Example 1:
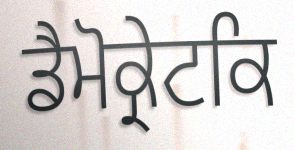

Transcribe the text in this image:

ਡੈਮੋਕ੍ਰੇਟਕਿ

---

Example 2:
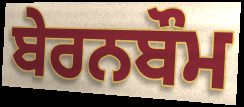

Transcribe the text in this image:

ਬੇਰਨਬੌਮ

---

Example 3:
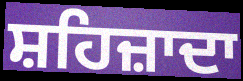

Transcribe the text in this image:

ਸ਼ਹਿਜ਼ਾਦਾ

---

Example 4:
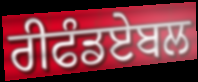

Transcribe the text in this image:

ਰੀਫੰਡਏਬਲ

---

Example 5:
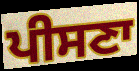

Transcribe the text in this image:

ਪੀਸਣਾ